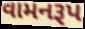
વામનરૂપ